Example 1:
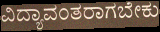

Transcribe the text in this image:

ವಿದ್ಯಾವಂತರಾಗಬೇಕು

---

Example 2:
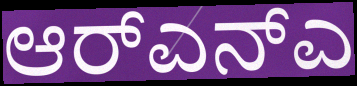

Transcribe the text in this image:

ಆರ್‌ಎನ್ಎ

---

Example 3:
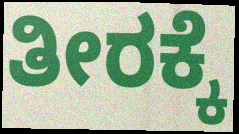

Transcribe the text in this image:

ತೀರಕ್ಕೆ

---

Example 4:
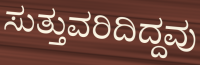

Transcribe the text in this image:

ಸುತ್ತುವರಿದಿದ್ದವು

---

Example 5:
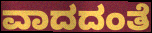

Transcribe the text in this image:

ವಾದದಂತೆ